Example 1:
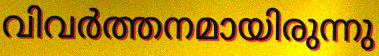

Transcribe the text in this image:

വിവർത്തനമായിരുന്നു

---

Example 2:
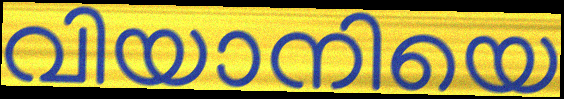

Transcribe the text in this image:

വിയാനിയെ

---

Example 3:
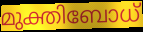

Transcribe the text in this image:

മുക്തിബോധ്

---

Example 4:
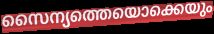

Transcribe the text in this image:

സൈന്യത്തെയൊക്കെയും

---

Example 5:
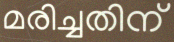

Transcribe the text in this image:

മരിച്ചതിന്